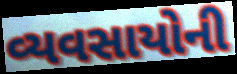
વ્યવસાયોની